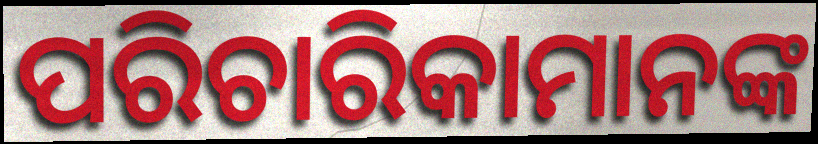
ପରିଚାରିକାମାନଙ୍କ